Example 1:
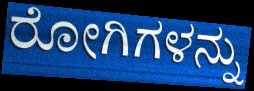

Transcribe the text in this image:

ರೋಗಿಗಳನ್ನು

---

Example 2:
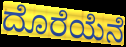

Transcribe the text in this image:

ದೊರೆಯೆನೆ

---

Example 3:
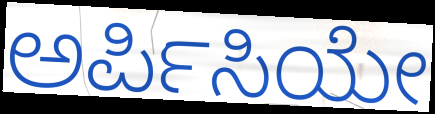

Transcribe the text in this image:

ಅರ್ಪಿಸಿಯೇ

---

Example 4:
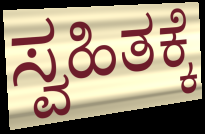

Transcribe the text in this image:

ಸ್ವಹಿತಕ್ಕೆ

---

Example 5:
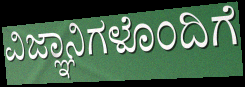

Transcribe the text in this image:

ವಿಜ್ಞಾನಿಗಳೊಂದಿಗೆ